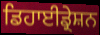
ਡਿਹਾਈਡ੍ਰੇਸ਼ਨ